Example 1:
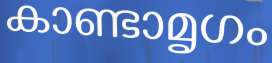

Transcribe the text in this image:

കാണ്ടാമൃഗം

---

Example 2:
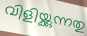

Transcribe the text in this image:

വിളിയ്ക്കുന്നതു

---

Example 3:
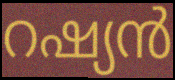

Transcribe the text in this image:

റഷ്യൻ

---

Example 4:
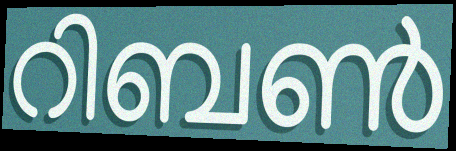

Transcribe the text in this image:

റിബൺ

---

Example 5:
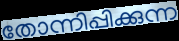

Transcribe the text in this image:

തോന്നിപ്പിക്കുന്ന